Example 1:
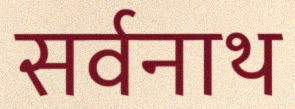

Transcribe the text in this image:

सर्वनाथ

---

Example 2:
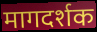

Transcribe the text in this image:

मागदर्शक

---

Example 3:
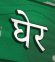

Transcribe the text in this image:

घेर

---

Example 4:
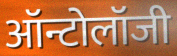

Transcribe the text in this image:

ऑन्टोलॉजी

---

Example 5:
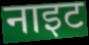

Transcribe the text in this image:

नाइट